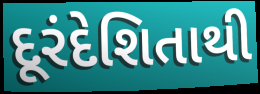
દૂરંદેશિતાથી